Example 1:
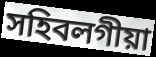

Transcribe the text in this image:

সহিবলগীয়া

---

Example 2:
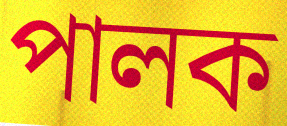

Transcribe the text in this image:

পালক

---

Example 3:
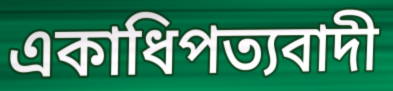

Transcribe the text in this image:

একাধিপত্যবাদী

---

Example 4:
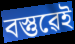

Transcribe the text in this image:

বস্তুৱেই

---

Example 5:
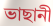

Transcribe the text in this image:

ভাছানী